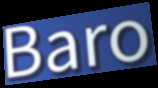
Baro